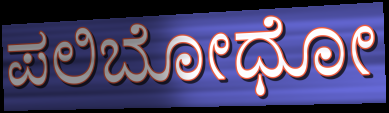
ಪಲಿಬೋಧೋ